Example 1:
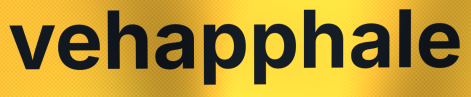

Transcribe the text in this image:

vehapphale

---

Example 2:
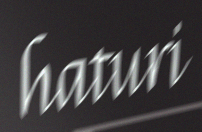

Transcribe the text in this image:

haturi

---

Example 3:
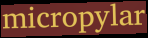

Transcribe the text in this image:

micropylar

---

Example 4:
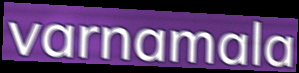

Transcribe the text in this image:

varnamala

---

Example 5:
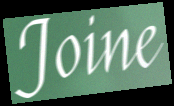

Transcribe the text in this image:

Joine